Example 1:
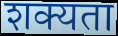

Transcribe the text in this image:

शक्यता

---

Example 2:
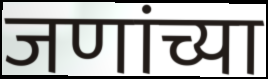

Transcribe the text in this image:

जणांच्या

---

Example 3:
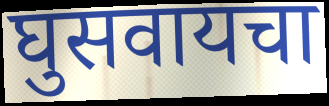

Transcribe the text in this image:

घुसवायचा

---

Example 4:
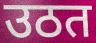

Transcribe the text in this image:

उठत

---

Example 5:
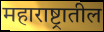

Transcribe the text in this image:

महाराष्ट्रातील